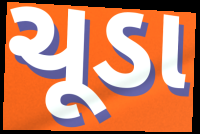
ચૂડા